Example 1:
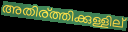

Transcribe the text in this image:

അതിര്ത്തിക്കുള്ളില്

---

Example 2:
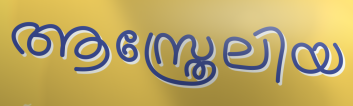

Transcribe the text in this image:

ആസ്ത്രേലിയ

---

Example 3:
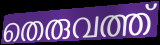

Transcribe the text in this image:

തെരുവത്ത്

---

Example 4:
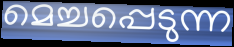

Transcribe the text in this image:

മെച്ചപ്പെടുന്ന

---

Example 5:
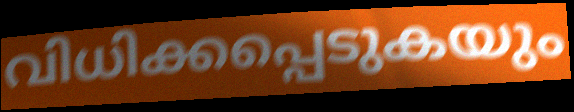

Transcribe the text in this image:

വിധിക്കപ്പെടുകയും